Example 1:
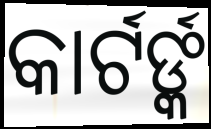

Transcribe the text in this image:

କାର୍ଟର୍ଙ୍କ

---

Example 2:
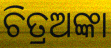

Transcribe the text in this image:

ଚିତ୍ରଅଙ୍କା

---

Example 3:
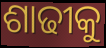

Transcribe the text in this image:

ଶାଢୀକୁ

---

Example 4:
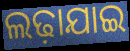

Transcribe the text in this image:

ଲଢ଼ାଯାଇ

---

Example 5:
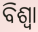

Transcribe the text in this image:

ବିଶ୍ବା